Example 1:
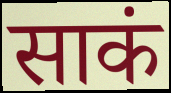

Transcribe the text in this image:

साकं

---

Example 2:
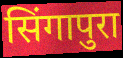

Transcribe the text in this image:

सिंगापुरा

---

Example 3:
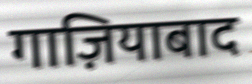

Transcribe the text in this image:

गाज़ियाबाद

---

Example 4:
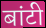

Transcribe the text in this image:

बांटी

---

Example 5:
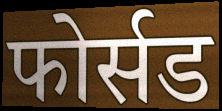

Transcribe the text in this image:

फोर्सड